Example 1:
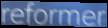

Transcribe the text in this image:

reformer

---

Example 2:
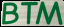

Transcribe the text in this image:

BTM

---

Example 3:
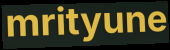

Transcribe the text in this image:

mrityune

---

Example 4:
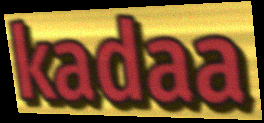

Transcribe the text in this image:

kadaa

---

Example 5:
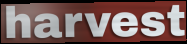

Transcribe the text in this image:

harvest